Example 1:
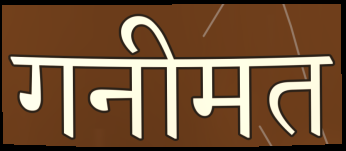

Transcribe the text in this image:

गनीमत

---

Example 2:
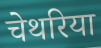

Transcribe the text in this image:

चेथरिया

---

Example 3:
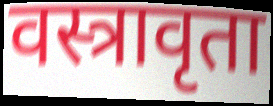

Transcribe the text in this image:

वस्त्रावृता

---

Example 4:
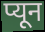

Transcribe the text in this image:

प्यून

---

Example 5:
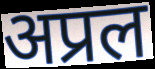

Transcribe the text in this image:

अप्रल